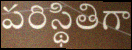
పరిస్థితిగా